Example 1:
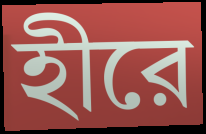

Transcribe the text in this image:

হীরে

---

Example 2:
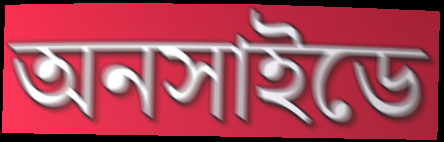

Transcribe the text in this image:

অনসাইডে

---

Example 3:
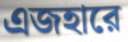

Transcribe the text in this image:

এজহারে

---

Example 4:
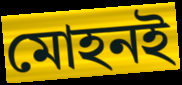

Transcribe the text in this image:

মোহনই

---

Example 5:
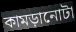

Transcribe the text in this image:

কামড়ানোটা